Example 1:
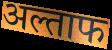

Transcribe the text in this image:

अल्ताफ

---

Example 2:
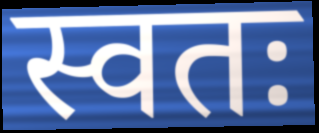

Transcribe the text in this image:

स्वतः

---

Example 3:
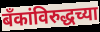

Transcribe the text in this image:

बँकांविरुद्धच्या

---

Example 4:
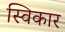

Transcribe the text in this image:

स्विकार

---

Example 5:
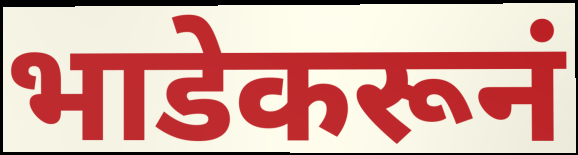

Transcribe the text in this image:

भाडेकरूनं